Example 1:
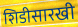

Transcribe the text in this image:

शिडीसारखी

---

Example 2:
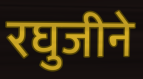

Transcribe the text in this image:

रघुजीने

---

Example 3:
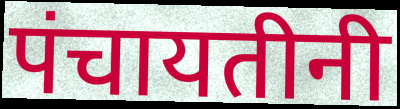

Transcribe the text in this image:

पंचायतीनी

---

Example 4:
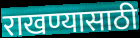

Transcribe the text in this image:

राखण्यासाठी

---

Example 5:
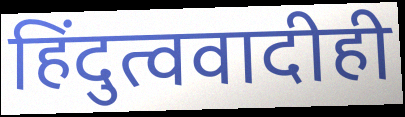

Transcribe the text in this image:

हिंदुत्ववादीही